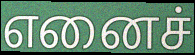
எனைச்